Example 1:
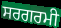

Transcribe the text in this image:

ਸਰਗਰਮੀ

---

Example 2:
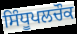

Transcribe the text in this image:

ਸਿੰਧੂਪਲਚੌਕ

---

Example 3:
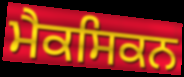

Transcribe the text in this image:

ਮੈਕਸਿਕਨ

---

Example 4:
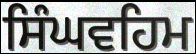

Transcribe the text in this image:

ਸਿੰਘਵਹਿਮ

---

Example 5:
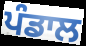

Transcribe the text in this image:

ਪੰਡਾਲ